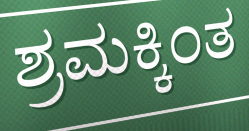
ಶ್ರಮಕ್ಕಿಂತ